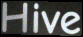
Hive